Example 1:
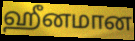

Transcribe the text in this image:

ஹீனமான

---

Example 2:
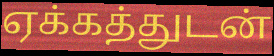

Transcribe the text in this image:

ஏக்கத்துடன்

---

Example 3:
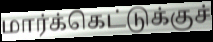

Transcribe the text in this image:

மார்க்கெட்டுக்குச்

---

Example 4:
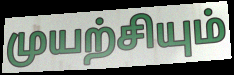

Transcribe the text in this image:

முயற்சியும்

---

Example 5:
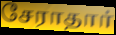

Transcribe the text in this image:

சேராதார்